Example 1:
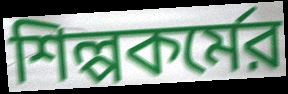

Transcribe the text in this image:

শিল্পকর্মের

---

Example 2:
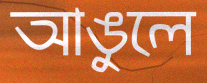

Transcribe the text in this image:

আঙুলে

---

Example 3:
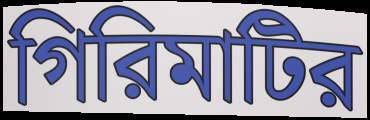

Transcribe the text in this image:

গিরিমাটির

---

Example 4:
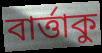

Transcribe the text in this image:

বার্ত্তাকু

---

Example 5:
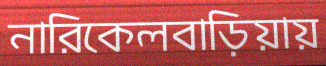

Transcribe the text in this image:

নারিকেলবাড়িয়ায়